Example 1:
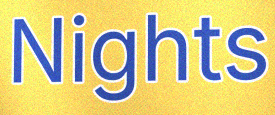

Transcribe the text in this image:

Nights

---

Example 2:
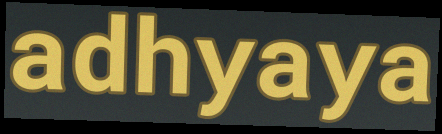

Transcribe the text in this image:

adhyaya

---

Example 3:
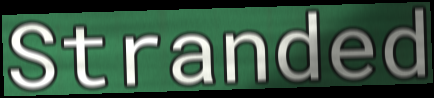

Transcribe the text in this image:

Stranded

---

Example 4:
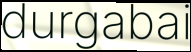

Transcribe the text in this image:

durgabai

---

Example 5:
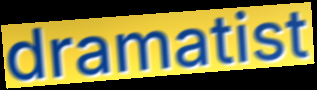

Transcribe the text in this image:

dramatist